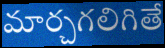
మార్చగలిగితే